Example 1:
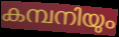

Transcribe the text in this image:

കമ്പനിയും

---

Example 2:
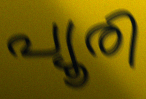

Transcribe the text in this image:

പ്യൂരി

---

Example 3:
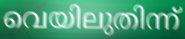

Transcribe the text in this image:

വെയിലുതിന്ന്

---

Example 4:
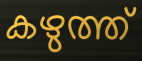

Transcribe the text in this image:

കഴുത്ത്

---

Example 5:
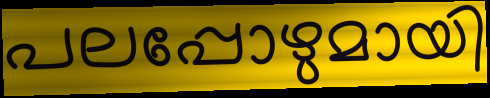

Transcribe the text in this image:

പലപ്പോഴുമായി